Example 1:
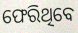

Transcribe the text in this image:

ଫେରିଥିବେ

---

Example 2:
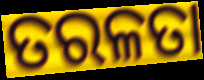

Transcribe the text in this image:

ତରଳତା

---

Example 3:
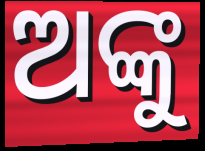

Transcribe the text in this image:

ଅଙ୍କୁ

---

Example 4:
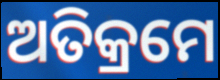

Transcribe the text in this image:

ଅତିକ୍ରମେ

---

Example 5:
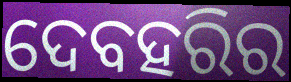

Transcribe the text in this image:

ଦେବହରିର